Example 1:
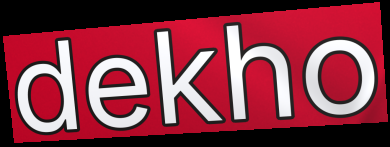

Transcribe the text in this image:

dekho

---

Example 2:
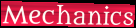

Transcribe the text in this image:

Mechanics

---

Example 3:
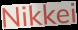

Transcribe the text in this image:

Nikkei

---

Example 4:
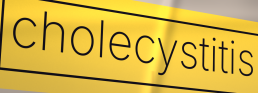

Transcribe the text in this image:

cholecystitis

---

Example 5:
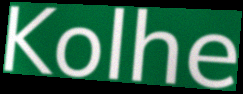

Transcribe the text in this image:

Kolhe